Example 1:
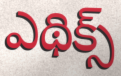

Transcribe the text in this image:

ఎథిక్స్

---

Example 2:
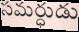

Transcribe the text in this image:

సమర్ధుడు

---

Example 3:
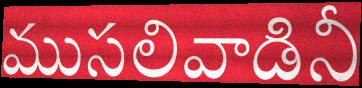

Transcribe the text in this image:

ముసలివాడినీ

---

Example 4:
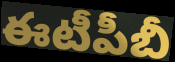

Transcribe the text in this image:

ఈటీపీబీ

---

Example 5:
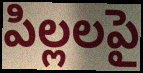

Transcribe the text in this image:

పిల్లలపై